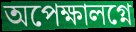
অপেক্ষালগ্নে